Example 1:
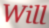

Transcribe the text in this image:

Will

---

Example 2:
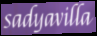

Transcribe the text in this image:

sadyavilla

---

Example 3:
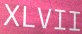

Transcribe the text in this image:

XLVII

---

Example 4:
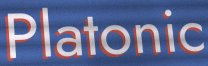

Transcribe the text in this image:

Platonic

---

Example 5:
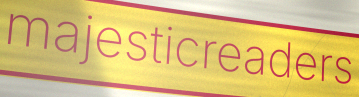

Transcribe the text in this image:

majesticreaders